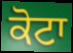
ਕੋਟਾ